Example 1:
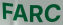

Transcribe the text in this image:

FARC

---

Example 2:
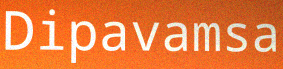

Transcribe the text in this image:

Dipavamsa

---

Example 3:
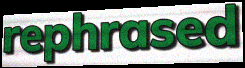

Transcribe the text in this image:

rephrased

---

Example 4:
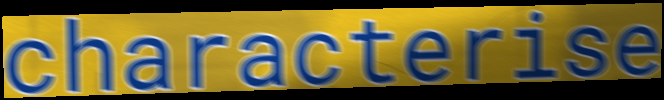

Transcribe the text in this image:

characterise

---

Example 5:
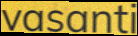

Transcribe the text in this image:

vasanti